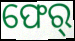
ଫେର୍